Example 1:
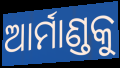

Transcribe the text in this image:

ଆର୍ମାଣ୍ଡକୁ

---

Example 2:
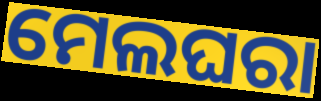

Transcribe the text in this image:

ମେଲଘରା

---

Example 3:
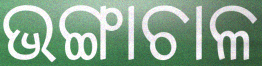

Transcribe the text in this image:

ଭଙ୍ଗାଚାଳ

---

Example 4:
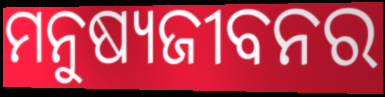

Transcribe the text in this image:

ମନୁଷ୍ୟଜୀବନର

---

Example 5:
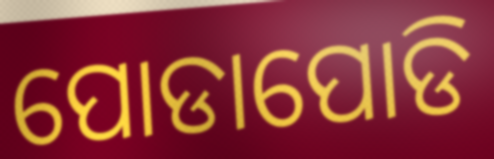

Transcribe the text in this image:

ପୋଡାପୋଡି